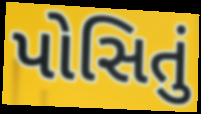
પોસિતું